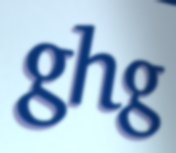
ghg